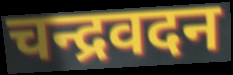
चन्द्रवदन